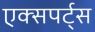
एक्‍सपर्ट्स